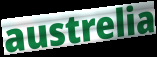
austrelia